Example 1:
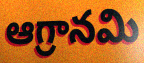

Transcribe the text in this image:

ఆగ్రానమి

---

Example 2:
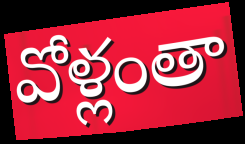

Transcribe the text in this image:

వోళ్లంతా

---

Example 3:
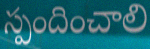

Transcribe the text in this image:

స్పందించాలి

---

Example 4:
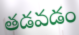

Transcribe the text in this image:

తడవడం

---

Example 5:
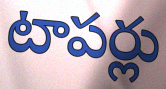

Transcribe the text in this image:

టాపర్లు